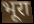
भूरा